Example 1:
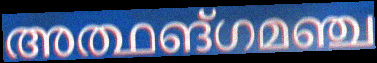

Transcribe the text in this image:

അത്ഥങ്ഗമഞ്ച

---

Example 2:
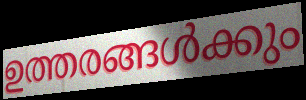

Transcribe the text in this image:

ഉത്തരങ്ങൾക്കും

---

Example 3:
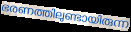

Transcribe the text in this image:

ഭരണത്തിലുണ്ടായിരുന്ന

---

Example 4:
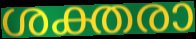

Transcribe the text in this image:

ശക്തരാ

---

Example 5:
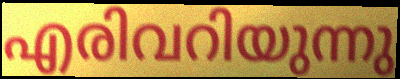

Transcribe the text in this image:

എരിവറിയുന്നു